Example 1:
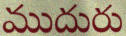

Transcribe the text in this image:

ముదురు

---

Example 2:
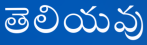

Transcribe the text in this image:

తెలియవు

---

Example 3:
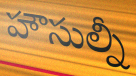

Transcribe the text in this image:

హౌసుల్నీ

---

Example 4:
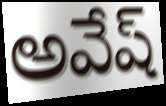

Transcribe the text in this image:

అవేష్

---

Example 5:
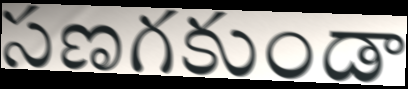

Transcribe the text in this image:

సణగకుండా